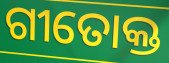
ଗୀତୋକ୍ତ